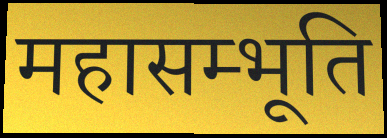
महासम्भूति